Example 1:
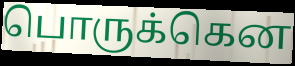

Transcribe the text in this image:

பொருக்கென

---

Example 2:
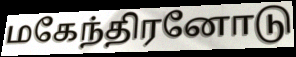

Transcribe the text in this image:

மகேந்திரனோடு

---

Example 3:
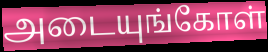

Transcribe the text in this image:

அடையுங்கோள்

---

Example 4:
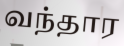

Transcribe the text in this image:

வந்தார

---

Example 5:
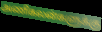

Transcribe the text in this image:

அணிகலன்களுக்கு